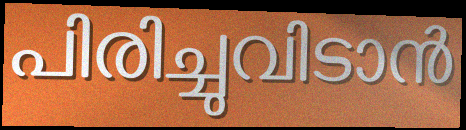
പിരിച്ചുവിടാൻ